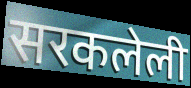
सरकलेली